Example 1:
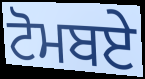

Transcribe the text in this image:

ਟੋਮਬਏ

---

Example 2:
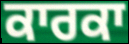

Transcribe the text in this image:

ਕਾਰਕਾ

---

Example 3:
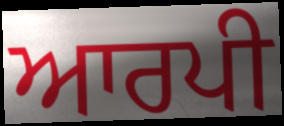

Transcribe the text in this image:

ਆਰਪੀ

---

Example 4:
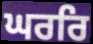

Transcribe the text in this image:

ਘਰਰਿ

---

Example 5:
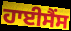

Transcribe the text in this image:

ਹਾਈਸੈਂਸ